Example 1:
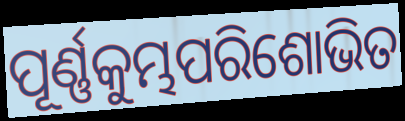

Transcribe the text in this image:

ପୂର୍ଣ୍ଣକୁମ୍ଭପରିଶୋଭିତ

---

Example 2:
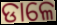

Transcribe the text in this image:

ଡାଳେ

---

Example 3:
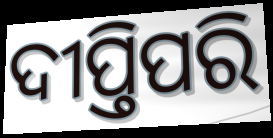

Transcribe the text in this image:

ଦୀପ୍ତିପରି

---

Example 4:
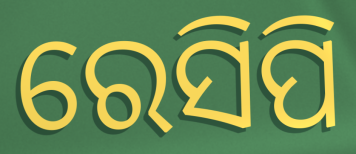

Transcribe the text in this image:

ରେସିପି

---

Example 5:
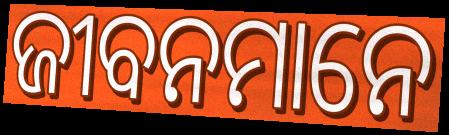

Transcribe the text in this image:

ଜୀବନମାନେ